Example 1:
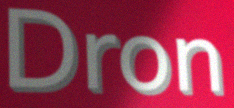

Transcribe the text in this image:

Dron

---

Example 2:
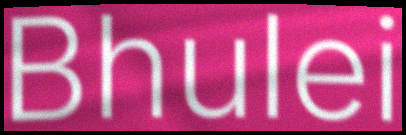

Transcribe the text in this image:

Bhulei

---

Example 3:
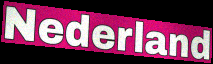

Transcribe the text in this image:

Nederland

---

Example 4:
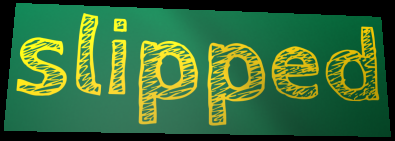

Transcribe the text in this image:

slipped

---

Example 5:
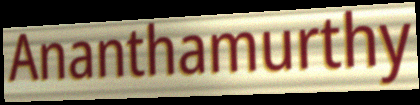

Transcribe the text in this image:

Ananthamurthy